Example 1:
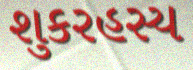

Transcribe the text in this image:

શુકરહસ્ય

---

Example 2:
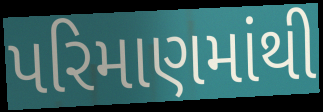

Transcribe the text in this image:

પરિમાણમાંથી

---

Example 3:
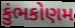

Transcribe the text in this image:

કુંભકોણમ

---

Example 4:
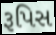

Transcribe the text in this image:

રૂપિસ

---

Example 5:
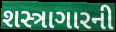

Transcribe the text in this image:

શસ્ત્રાગારની